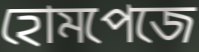
হোমপেজে